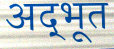
अद्‌भूत